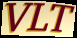
VLT